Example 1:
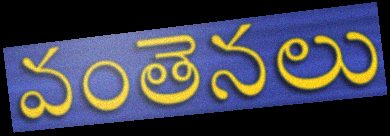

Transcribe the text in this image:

వంతెనలు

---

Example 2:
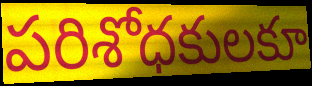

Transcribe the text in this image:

పరిశోధకులకూ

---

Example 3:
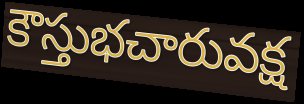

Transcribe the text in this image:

కౌస్తుభచారువక్ష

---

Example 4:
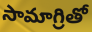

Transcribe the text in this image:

సామాగ్రితో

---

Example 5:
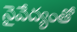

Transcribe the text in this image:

నైవేద్యంతో